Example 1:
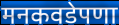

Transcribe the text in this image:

मनकवडेपणा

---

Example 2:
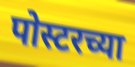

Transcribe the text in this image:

पोस्टरच्या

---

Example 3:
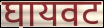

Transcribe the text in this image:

घायवट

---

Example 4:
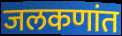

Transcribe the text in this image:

जलकणांत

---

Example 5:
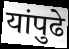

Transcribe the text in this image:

यांपुढे